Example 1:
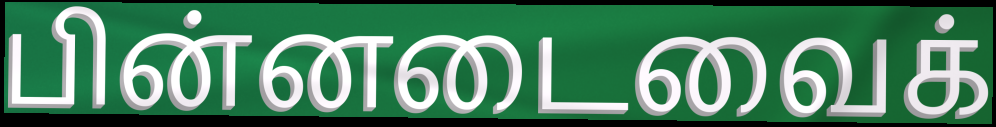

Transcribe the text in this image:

பின்னடைவைக்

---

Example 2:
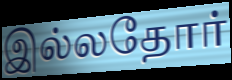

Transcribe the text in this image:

இல்லதோர்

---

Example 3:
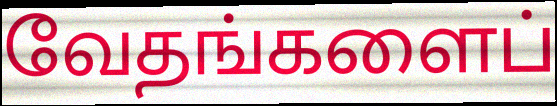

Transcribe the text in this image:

வேதங்களைப்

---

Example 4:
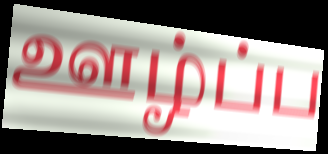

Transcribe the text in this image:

ஊழ்ப்ப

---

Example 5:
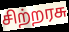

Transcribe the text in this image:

சிற்றரசு